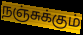
நஞ்சுக்கும்